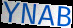
YNAB